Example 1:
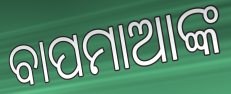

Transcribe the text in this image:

ବାପମାଆଙ୍କ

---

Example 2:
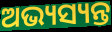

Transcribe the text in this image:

ଅଭ୍ୟସ୍ୟନ୍ତ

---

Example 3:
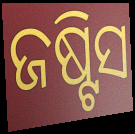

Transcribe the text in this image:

ଜଷ୍ଟିସ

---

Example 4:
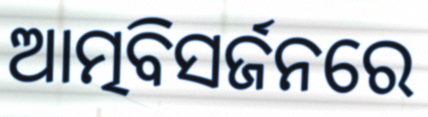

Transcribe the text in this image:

ଆତ୍ମବିସର୍ଜନରେ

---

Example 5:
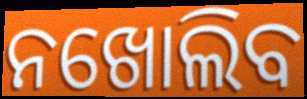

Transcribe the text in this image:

ନଖୋଲିବ